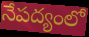
నేపద్యంలో